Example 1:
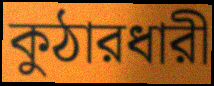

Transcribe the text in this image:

কুঠারধারী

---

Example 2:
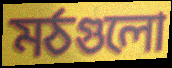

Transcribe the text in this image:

মঠগুলো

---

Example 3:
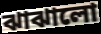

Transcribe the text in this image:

ঝাঝালো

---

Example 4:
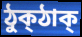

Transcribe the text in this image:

ঠুক্ঠাক্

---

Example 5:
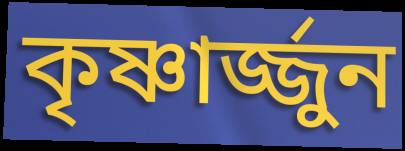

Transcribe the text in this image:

কৃষ্ণার্জ্জুন